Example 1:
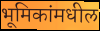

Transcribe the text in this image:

भूमिकांमधील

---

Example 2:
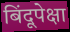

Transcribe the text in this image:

बिंदूपेक्षा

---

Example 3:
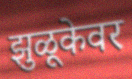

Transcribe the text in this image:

झुळूकेवर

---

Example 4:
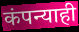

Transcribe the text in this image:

कंपन्याही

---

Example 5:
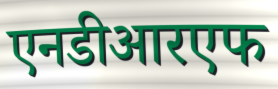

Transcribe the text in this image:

एनडीआरएफ